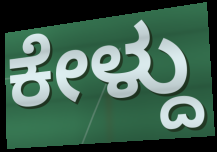
ಕೇಳ್ದು